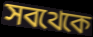
সবথেকে